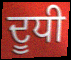
ਦੂਧੀ